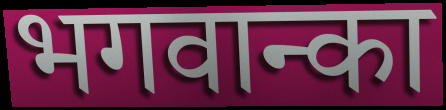
भगवान्का